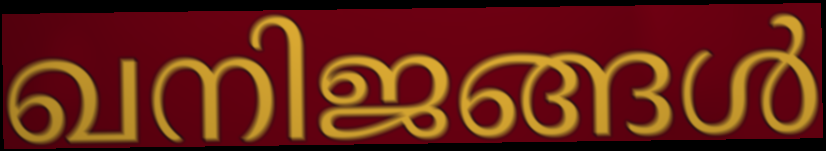
ഖനിജങ്ങൾ